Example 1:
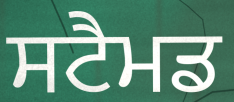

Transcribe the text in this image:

ਸਟੈਮਡ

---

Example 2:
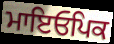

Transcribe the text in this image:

ਮਾਇਓਪਿਕ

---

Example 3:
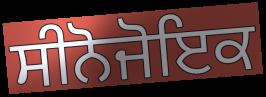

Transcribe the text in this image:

ਸੀਨੋਜੋਇਕ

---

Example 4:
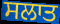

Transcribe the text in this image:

ਸਲਾਤ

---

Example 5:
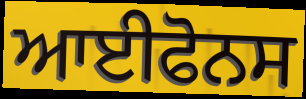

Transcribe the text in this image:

ਆਈਫੋਨਸ